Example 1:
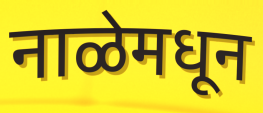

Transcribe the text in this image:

नाळेमधून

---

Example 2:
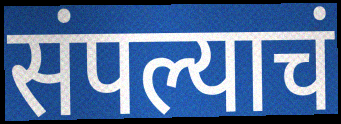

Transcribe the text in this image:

संपल्याचं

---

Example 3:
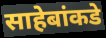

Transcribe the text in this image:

साहेबांकडे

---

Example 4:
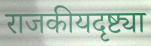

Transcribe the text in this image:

राजकीयदृष्ट्या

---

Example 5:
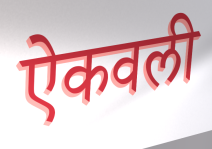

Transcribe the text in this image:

ऐकवली